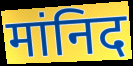
मांनिद